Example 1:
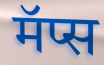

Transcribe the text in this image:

मॅप्स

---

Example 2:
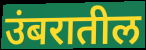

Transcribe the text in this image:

उंबरातील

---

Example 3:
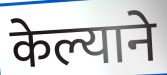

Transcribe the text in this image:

केल्‍याने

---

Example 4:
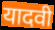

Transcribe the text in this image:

यादवी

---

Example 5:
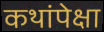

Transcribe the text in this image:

कथांपेक्षा